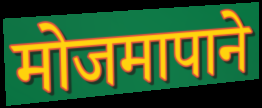
मोजमापाने